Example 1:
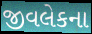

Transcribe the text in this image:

જીવલેકના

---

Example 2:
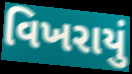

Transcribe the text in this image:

વિખરાયું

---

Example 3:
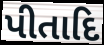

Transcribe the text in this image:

પીતાદિ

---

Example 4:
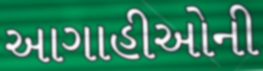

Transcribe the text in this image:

આગાહીઓની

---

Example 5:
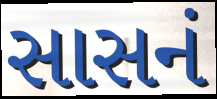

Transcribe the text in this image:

સાસનં